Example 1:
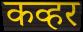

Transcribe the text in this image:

कव्हर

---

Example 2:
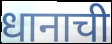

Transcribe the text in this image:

धानाची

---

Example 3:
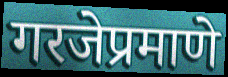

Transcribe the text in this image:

गरजेप्रमाणे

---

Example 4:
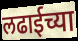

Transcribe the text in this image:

लढाईच्या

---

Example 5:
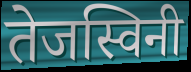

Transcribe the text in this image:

तेजस्विनी